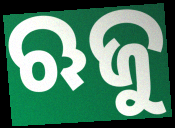
ଋଜୁ